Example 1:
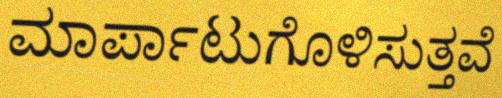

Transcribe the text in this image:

ಮಾರ್ಪಾಟುಗೊಳಿಸುತ್ತವೆ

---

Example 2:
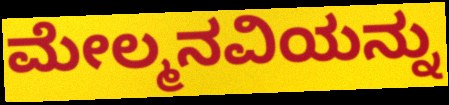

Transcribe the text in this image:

ಮೇಲ್ಮನವಿಯನ್ನು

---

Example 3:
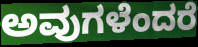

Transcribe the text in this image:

ಅವುಗಳೆಂದರೆ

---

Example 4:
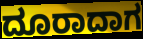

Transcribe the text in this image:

ದೂರಾದಾಗ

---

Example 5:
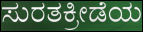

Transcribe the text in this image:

ಸುರತಕ್ರೀಡೆಯ